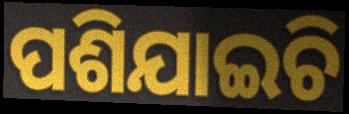
ପଶିଯାଇଚି